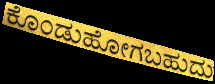
ಕೊಂಡುಹೋಗಬಹುದು